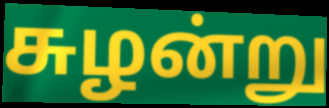
சுழன்று